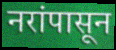
नरांपासून